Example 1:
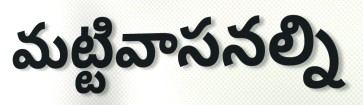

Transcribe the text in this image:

మట్టివాసనల్ని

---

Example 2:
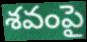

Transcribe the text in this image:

శవంపై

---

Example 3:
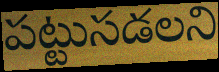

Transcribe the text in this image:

పట్టుసడలని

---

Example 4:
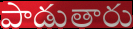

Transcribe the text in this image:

పాడుతారు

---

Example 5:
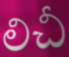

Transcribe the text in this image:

లిచీ